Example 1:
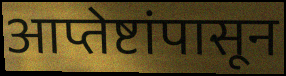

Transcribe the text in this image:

आप्तेष्टांपासून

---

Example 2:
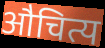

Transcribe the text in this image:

औचित्य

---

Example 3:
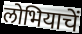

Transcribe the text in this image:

लोभियाचें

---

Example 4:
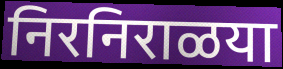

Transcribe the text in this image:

निरनिराळया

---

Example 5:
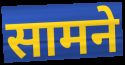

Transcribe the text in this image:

सामने